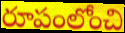
రూపంలోంచి